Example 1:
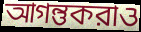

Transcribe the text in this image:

আগন্তুকরাও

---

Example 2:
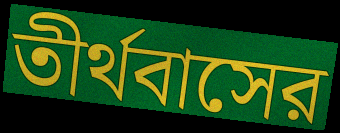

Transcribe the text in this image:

তীর্থবাসের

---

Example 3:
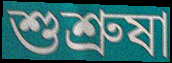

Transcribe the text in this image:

শুশ্রুষা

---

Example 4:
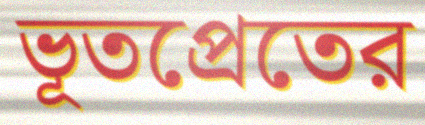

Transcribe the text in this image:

ভূতপ্রেতের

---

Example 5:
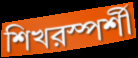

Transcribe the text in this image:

শিখরস্পর্শী